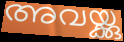
അവയ്ക്കു